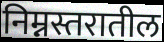
निम्नस्तरातील